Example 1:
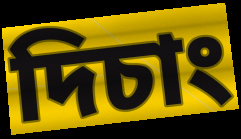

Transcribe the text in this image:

দিচাং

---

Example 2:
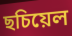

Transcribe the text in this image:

ছচিয়েল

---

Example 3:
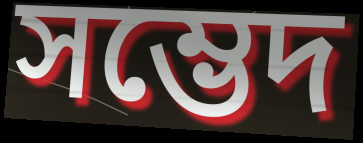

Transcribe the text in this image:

সম্ভেদ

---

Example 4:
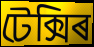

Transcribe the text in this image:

টেক্সিৰ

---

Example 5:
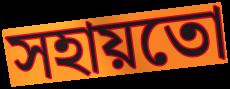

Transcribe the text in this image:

সহায়তো